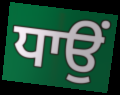
ਧਾਉਂ